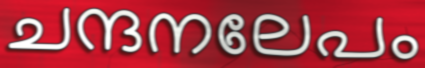
ചന്ദനലേപം